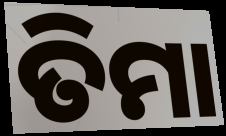
ତିମା